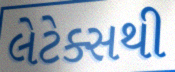
લેટેક્સથી